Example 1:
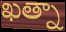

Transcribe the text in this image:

ఖత్నా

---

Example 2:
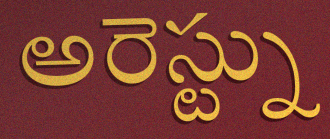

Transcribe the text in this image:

అరెస్ట్ను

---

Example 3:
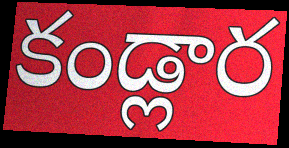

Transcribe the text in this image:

కండ్లార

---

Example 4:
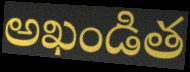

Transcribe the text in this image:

అఖండిత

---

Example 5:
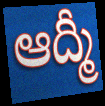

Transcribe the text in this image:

ఆద్మీ